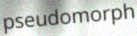
pseudomorph